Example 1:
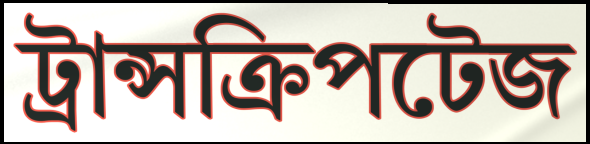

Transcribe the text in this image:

ট্রান্সক্রিপটেজ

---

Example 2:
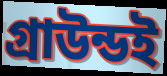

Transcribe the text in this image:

গ্রাউন্ডই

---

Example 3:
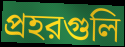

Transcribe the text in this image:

প্রহরগুলি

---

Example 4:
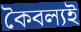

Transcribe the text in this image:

কৈবল্যই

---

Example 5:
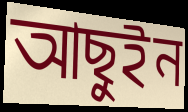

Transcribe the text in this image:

আছুইন